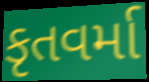
કૃતવર્મા